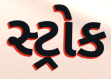
સ્ટ્રોક